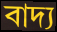
বাদ্য